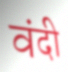
वंदी